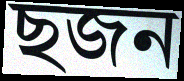
ছজন